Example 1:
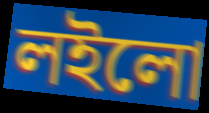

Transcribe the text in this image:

লইলো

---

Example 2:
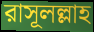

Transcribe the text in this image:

রাসূলল্লাহ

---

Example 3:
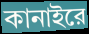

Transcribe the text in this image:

কানাইরে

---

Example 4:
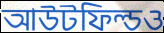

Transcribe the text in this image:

আউটফিল্ডও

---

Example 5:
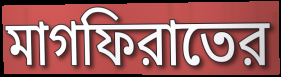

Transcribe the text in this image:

মাগফিরাতের